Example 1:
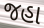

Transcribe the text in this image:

જહા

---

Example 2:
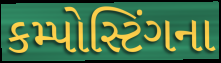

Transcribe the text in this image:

કમ્પોસ્ટિંગના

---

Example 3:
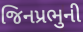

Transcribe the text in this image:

જિનપ્રભુની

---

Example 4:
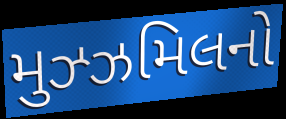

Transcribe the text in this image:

મુઝ્ઝમિલનો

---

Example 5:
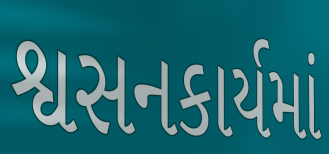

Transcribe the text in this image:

શ્વસનકાર્યમાં